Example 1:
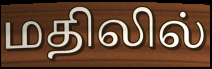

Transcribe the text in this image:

மதிலில்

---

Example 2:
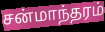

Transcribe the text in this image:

சன்மாந்தரம்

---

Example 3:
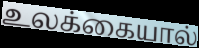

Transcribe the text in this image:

உலக்கையால்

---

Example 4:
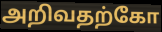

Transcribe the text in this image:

அறிவதற்கோ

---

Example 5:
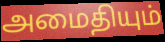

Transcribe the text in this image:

அமைதியும்